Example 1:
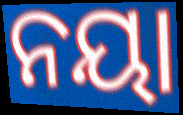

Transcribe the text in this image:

ନୟା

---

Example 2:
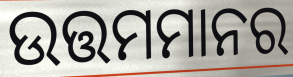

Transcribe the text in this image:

ଉତ୍ତମମାନର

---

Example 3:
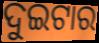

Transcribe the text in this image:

ଦୁଇଟାର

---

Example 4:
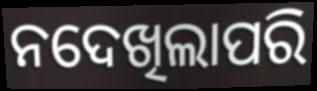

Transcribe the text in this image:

ନଦେଖିଲାପରି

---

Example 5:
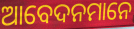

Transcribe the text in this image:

ଆବେଦନମାନେ